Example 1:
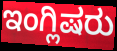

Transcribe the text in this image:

ಇಂಗ್ಲಿಷರು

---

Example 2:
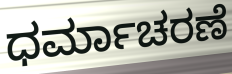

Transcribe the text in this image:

ಧರ್ಮಾಚರಣೆ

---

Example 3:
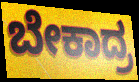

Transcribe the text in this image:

ಬೇಕಾದ್ರ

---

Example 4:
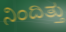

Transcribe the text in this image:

ನಿಂದಿತ್ತು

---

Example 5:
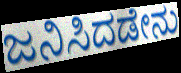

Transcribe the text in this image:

ಜನಿಸಿದಡೇನು